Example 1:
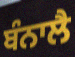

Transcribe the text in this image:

ਬੰਨਾਲੈ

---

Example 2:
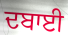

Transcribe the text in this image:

ਦਬਾਈ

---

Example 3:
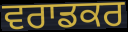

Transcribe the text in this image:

ਵਰਾਡਕਰ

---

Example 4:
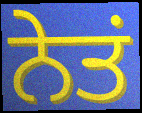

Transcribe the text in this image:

ਨੇਤਂ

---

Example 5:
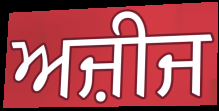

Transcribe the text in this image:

ਅਜ਼ੀਜ